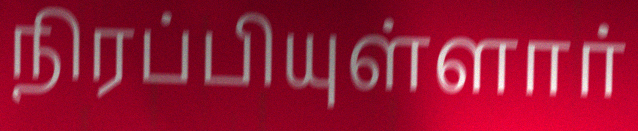
நிரப்பியுள்ளார்